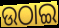
ଉଠାଇ